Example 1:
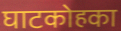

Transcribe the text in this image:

घाटकोहका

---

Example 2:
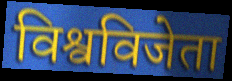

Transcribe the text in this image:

विश्वविजेता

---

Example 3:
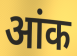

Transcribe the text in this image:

आंक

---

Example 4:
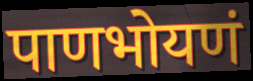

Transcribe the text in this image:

पाणभोयणं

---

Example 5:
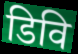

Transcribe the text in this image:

डिवि